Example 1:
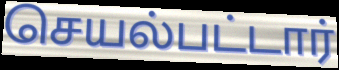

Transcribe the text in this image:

செயல்பட்டார்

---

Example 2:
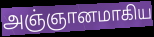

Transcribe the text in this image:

அஞ்ஞானமாகிய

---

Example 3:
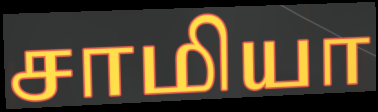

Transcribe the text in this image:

சாமியா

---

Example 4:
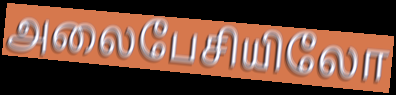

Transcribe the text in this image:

அலைபேசியிலோ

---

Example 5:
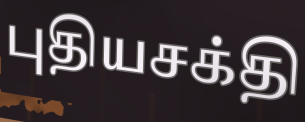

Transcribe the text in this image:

புதியசக்தி